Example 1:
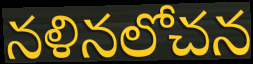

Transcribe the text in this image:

నళినలోచన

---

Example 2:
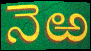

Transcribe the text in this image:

నెఱ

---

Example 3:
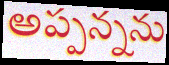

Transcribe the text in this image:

అప్పన్నను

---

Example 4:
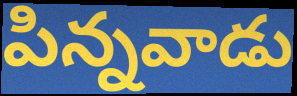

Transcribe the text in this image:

పిన్నవాడు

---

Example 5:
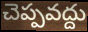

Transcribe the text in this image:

చెప్పవద్దు